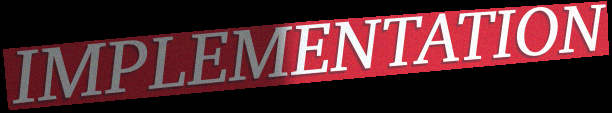
IMPLEMENTATION